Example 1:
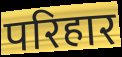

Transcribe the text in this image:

परिहार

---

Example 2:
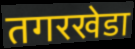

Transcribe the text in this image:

तगरखेडा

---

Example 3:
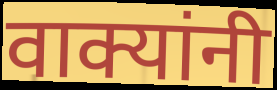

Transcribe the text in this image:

वाक्यांनी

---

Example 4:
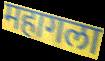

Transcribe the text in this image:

महागला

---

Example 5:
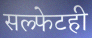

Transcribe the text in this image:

सल्फेटही